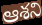
ఆశని